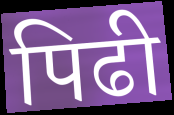
पिढी